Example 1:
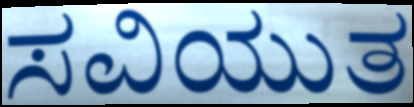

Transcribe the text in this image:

ಸವಿಯುತ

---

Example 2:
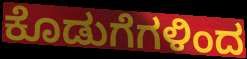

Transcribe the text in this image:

ಕೊಡುಗೆಗಳಿಂದ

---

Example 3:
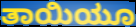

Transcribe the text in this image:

ತಾಯಿಯೂ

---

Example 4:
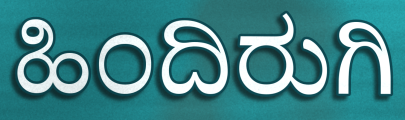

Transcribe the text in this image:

ಹಿಂದಿರುಗಿ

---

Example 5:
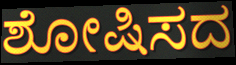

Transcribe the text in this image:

ಶೋಷಿಸದ